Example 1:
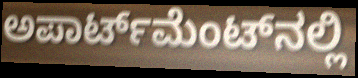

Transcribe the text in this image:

ಅಪಾರ್ಟ್‌ಮೆಂಟ್‌ನಲ್ಲಿ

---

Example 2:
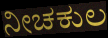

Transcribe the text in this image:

ನೀಚಕುಲ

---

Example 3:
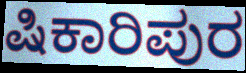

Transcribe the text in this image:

ಷಿಕಾರಿಪುರ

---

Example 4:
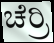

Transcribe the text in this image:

ಚೆರ್ರಿ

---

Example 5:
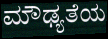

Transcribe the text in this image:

ಮೌಢ್ಯತೆಯ